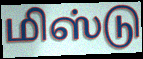
மிஸ்டு